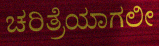
ಚರಿತ್ರೆಯಾಗಲೀ